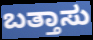
ಬತ್ತಾಸು